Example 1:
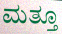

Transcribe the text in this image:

ಮತ್ತೂ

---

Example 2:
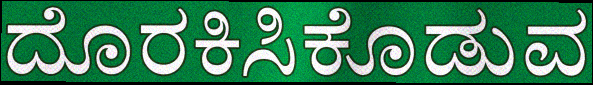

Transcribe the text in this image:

ದೊರಕಿಸಿಕೊಡುವ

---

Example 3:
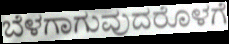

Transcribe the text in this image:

ಬೆಳಗಾಗುವುದರೊಳಗೆ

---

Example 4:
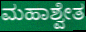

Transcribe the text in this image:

ಮಹಾಶ್ವೇತ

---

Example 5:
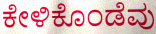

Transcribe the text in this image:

ಕೇಳಿಕೊಂಡೆವು